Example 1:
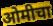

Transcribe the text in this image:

ओमीचा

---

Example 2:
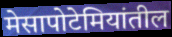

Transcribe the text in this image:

मेसापोटेमियांतील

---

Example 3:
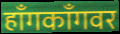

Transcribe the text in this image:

हाँगकाँगवर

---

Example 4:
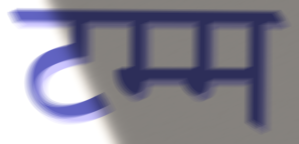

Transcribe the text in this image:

टम्म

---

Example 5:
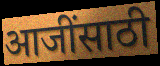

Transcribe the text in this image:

आजींसाठी